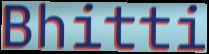
Bhitti